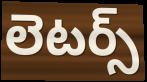
లెటర్స్